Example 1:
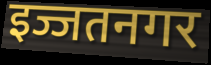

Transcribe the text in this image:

इज्जतनगर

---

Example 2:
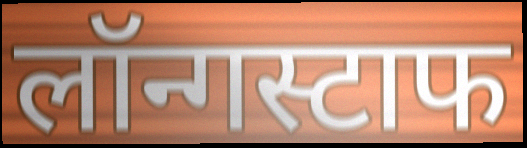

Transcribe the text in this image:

लॉन्गस्टाफ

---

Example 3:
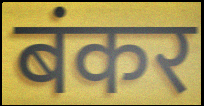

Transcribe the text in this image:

बंकर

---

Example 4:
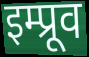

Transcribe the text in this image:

इम्प्रूव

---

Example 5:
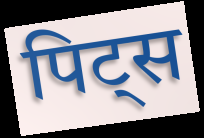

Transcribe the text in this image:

पिट्स